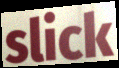
slick